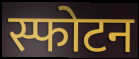
स्फोटन